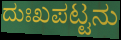
ದುಃಖಪಟ್ಟನು